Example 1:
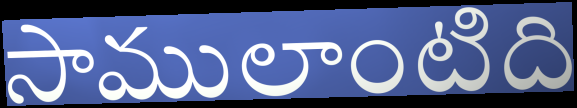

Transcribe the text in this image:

సాములాంటిది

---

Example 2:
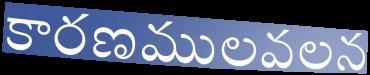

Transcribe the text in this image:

కారణములవలన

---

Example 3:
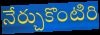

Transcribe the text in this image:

నేర్చుకొంటిరి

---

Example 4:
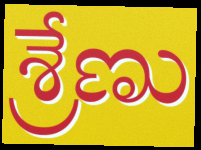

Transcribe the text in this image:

శ్రేణు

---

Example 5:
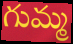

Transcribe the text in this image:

గుమ్మ